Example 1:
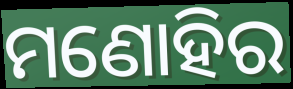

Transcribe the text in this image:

ମଣୋହିର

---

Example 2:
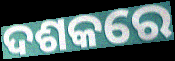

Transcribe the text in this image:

ଦଶକରେ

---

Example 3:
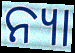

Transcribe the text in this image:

ନ୍ୟା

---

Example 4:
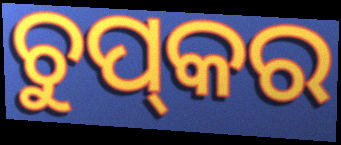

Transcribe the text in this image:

ଚୁପ୍‌କର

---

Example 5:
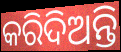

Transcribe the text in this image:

କରିଦିଅନ୍ତି